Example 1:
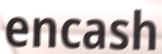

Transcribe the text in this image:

encash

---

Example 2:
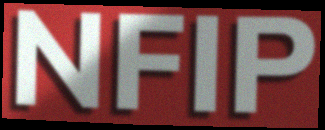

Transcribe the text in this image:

NFIP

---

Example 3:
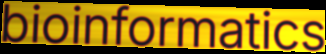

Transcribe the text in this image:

bioinformatics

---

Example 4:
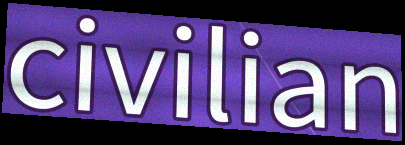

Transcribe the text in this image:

civilian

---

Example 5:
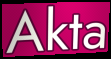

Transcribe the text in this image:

Akta